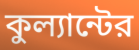
কুল্যান্টের